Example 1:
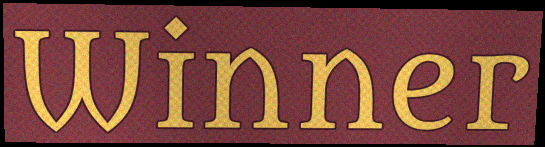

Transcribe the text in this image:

Winner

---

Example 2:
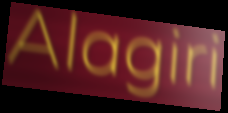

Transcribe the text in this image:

Alagiri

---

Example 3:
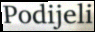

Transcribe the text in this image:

Podijeli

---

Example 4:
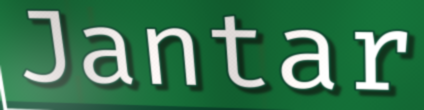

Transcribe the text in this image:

Jantar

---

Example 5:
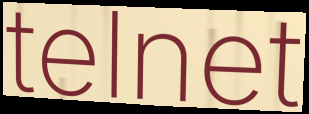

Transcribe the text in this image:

telnet